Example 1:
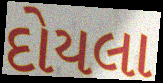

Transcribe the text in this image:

દોયલા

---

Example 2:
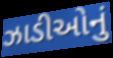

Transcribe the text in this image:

ઝાડીઓનું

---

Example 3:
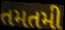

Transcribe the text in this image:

તમતમી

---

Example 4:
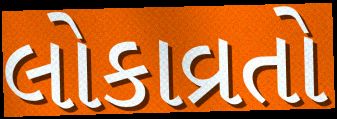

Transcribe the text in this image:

લોકાવ્રતો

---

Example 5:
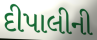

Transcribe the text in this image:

દીપાલીની